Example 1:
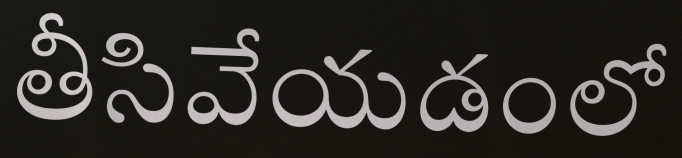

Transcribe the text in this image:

తీసివేయడంలో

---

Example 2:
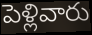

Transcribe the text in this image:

పెళ్లివారు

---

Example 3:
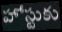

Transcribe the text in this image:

హోస్టుకు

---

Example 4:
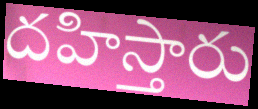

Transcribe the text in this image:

దహిస్తారు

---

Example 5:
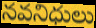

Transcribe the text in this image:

నవనిధులు